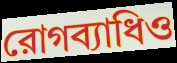
রোগব্যাধিও